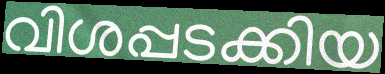
വിശപ്പടക്കിയ